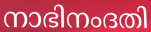
നാഭിനംദതി